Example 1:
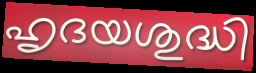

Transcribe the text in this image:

ഹൃദയശുദ്ധി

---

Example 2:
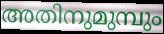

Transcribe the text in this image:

അതിനുമുമ്പും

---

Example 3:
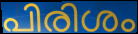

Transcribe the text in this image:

പിരിശം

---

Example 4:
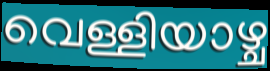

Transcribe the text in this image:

വെള്ളിയാഴ്ച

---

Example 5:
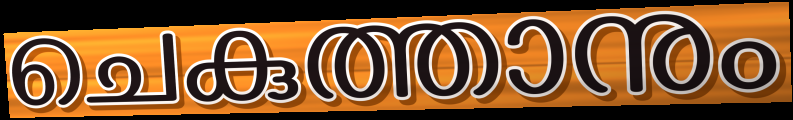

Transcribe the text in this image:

ചെകുത്താനും